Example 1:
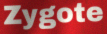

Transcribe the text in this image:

Zygote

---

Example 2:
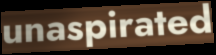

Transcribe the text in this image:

unaspirated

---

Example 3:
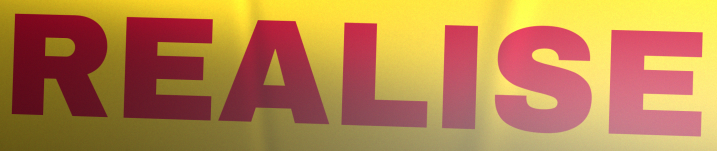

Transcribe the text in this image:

REALISE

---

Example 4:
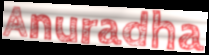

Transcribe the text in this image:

Anuradha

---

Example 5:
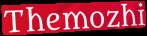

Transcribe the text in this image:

Themozhi